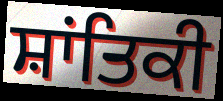
ਸ਼ਾਂਤਿਕੀ